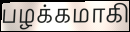
பழக்கமாகி